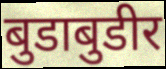
बुडाबुडीर